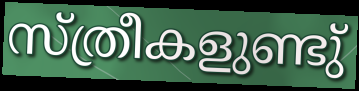
സ്ത്രീകളുണ്ടു്